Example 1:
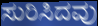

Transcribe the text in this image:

ಸುರಿಸಿದವು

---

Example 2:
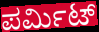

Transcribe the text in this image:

ಪರ್ಮಿಟ್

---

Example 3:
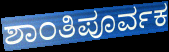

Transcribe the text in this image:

ಶಾಂತಿಪೂರ್ವಕ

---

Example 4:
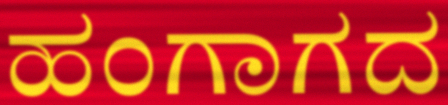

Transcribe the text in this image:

ಹಂಗಾಗದ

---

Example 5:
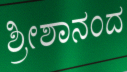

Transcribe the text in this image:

ಶ್ರೀಶಾನಂದ